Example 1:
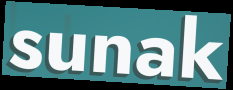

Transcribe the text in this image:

sunak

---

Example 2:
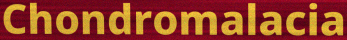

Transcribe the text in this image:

Chondromalacia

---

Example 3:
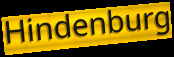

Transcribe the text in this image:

Hindenburg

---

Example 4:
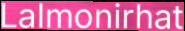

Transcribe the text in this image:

Lalmonirhat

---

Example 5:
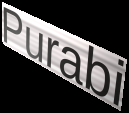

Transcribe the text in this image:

Purabi